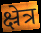
क्ष्रेत्र